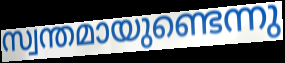
സ്വന്തമായുണ്ടെന്നു